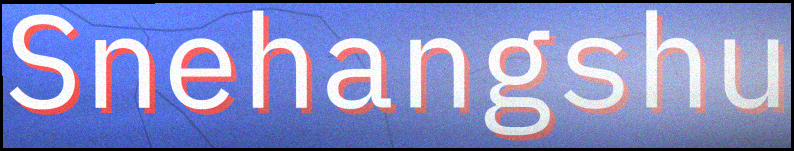
Snehangshu